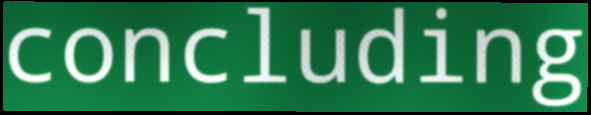
concluding